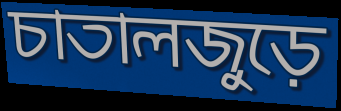
চাতালজুড়ে